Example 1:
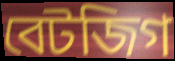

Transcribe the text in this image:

বেটজিগ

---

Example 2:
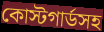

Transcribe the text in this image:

কোস্টগার্ডসহ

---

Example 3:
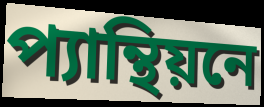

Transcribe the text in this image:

প্যান্থিয়নে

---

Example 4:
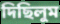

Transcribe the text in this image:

দিছিলুম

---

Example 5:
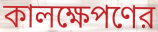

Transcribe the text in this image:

কালক্ষেপণের